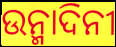
ଉନ୍ମାଦିନୀ